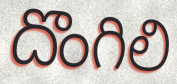
దొంగిలి